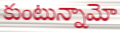
కుంటున్నామో